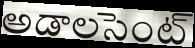
అడాలసెంట్